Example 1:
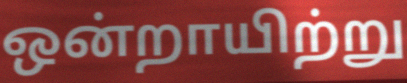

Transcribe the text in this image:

ஒன்றாயிற்று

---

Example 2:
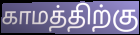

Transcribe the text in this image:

காமத்திற்கு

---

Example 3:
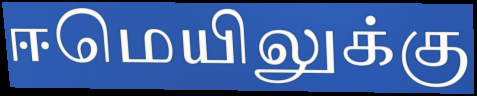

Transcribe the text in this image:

ஈமெயிலுக்கு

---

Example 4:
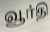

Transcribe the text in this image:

வூர்தி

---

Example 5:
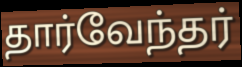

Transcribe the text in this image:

தார்வேந்தர்